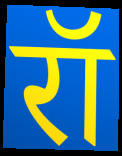
रॉ